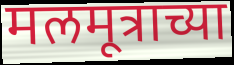
मलमूत्राच्या